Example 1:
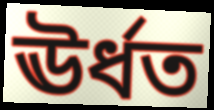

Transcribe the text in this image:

ঊৰ্ধত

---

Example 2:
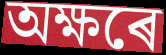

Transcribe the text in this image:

অক্ষৰে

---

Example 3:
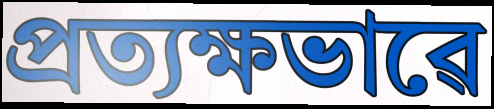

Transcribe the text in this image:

প্ৰত্যক্ষভাৱে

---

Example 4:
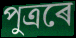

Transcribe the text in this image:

পুত্ৰৰে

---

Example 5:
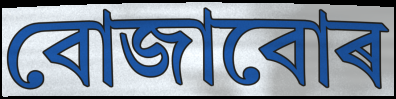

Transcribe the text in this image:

বোজাবোৰ